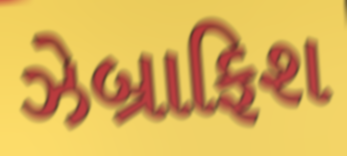
ઝેબ્રાફિશ